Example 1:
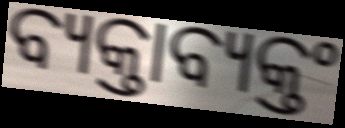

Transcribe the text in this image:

ବ୍ୟକ୍ତାବ୍ୟକ୍ତଂ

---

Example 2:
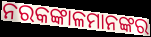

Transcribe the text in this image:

ନରକଙ୍କାଳମାନଙ୍କର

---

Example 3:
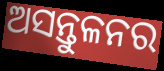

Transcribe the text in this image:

ଅସନ୍ତୁଳନର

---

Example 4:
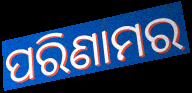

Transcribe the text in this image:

ପରିଣାମର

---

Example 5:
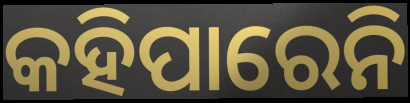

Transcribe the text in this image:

କହିପାରେନି